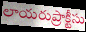
లాయరుప్రాక్టీసు